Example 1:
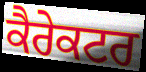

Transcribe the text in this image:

ਕੈਰੇਕਟਰ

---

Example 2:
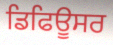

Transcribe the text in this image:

ਡਿਫਿਊਸਰ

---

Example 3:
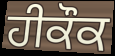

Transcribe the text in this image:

ਹੀਕੌਕ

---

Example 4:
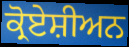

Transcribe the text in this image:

ਕ੍ਰੋਏਸ਼ੀਅਨ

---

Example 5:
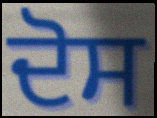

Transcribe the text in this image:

ਦੋਸ